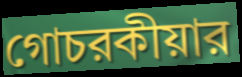
গোচরকীয়ার